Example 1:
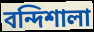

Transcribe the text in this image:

বন্দিশালা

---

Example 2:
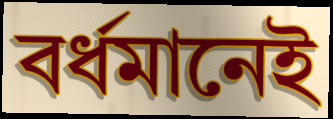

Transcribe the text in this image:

বর্ধমানেই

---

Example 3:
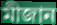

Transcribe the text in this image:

মীজান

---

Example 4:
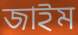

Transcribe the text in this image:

জাইম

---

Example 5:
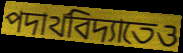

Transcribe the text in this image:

পদার্থবিদ্যাতেও